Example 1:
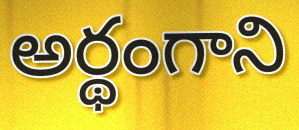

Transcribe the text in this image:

అర్థంగాని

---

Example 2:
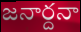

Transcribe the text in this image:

జనార్దనా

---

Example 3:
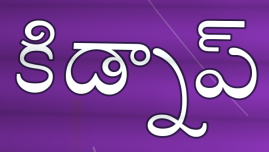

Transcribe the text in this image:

కిడ్నాప్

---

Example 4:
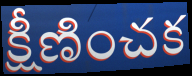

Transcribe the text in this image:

క్షీణించక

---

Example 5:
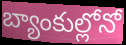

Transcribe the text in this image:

బ్యాంకుల్లోనో